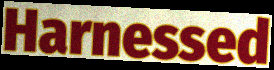
Harnessed